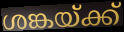
ശങ്കയ്ക്ക്